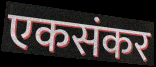
एकसंकर